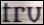
tru